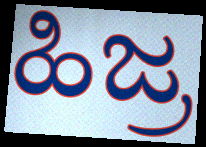
ಹಿಜ್ರ